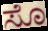
ಸೊ